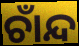
ଚାଁନ୍ଦ